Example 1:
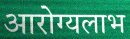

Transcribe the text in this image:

आरोग्यलाभ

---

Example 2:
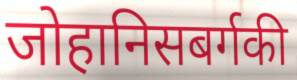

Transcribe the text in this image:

जोहानिसबर्गकी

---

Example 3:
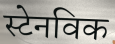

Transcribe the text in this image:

स्टेनविक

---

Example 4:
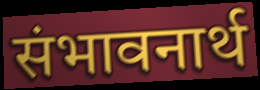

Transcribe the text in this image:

संभावनार्थ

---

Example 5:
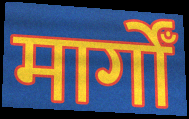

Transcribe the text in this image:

मार्गोँ